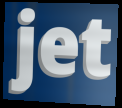
jet